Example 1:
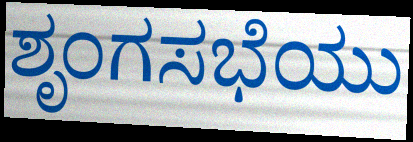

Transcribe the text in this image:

ಶೃಂಗಸಭೆಯು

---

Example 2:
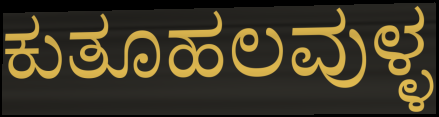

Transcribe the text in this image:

ಕುತೂಹಲವುಳ್ಳ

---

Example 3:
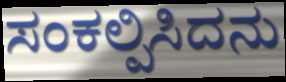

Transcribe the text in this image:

ಸಂಕಲ್ಪಿಸಿದನು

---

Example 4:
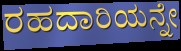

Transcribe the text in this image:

ರಹದಾರಿಯನ್ನೇ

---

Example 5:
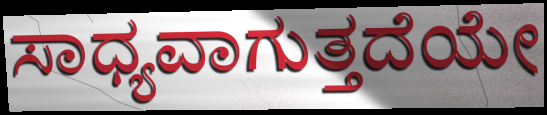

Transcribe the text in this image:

ಸಾಧ್ಯವಾಗುತ್ತದೆಯೇ